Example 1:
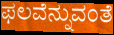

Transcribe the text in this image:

ಫಲವೆನ್ನುವಂತೆ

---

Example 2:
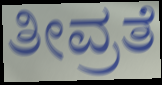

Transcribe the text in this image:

ತೀವ್ರತೆ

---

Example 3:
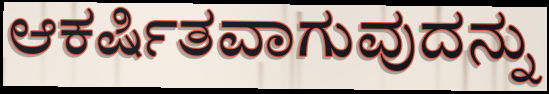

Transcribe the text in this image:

ಆಕರ್ಷಿತವಾಗುವುದನ್ನು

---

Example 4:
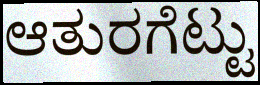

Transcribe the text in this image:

ಆತುರಗೆಟ್ಟು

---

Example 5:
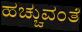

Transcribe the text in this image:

ಹಚ್ಚುವಂತೆ